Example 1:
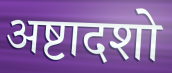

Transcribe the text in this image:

अष्टादशो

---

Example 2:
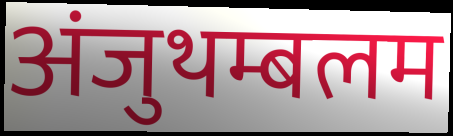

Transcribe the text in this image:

अंजुथम्बलम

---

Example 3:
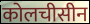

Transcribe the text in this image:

कोलचीसीन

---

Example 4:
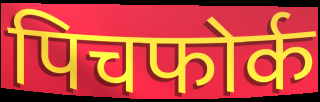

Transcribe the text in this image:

पिचफोर्क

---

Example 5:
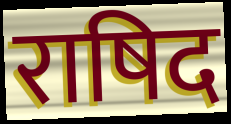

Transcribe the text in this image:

राषिद